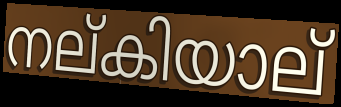
നല്കിയാല്